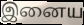
இனைய